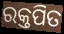
ରକ୍ତପିତ